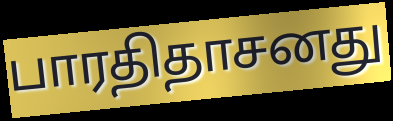
பாரதிதாசனது